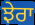
ਝੇਰਾ